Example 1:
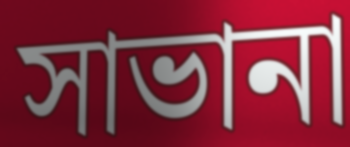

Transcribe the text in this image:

সাভানা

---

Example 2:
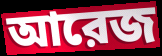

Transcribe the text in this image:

আরেজ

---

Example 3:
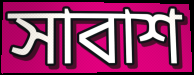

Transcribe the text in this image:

সাবাশ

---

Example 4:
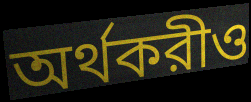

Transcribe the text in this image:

অর্থকরীও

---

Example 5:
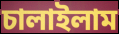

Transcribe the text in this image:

চালাইলাম